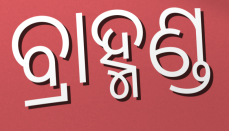
ବ୍ରାହ୍ମଣ୍ଡ